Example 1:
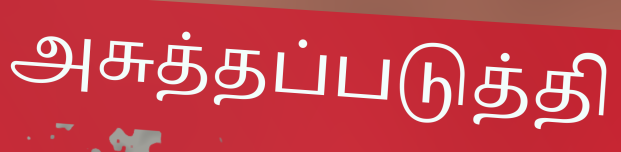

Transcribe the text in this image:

அசுத்தப்படுத்தி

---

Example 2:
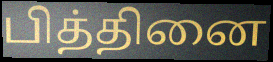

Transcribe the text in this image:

பித்தினை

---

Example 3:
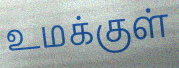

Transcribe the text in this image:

உமக்குள்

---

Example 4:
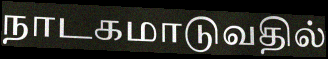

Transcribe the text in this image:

நாடகமாடுவதில்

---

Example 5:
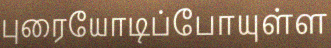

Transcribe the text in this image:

புரையோடிப்போயுள்ள